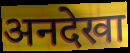
अनदेखा